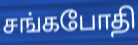
சங்கபோதி